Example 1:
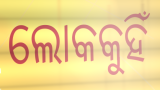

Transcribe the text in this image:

ଲୋକକୁହିଁ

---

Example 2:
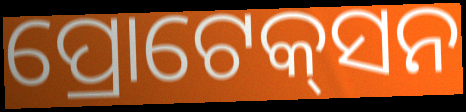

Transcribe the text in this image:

ପ୍ରୋଟେକ୍‌ସନ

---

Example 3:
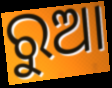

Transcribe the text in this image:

ରୁଆ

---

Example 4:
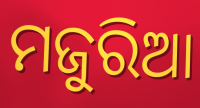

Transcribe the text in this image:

ମଜୁରିଆ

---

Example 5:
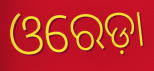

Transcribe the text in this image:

ଓରେଡ଼ା